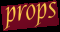
props